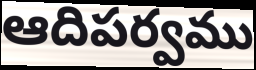
ఆదిపర్వము